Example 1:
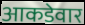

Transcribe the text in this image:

आकडेवार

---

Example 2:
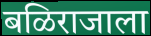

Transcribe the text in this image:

बळिराजाला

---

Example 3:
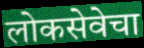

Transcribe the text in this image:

लोकसेवेचा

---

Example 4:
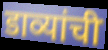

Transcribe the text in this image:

डाव्यांची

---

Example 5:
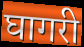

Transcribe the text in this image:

घागरी